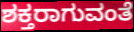
ಶಕ್ತರಾಗುವಂತೆ